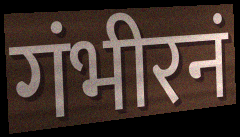
गंभीरनं